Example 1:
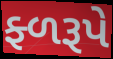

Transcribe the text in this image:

ફ્ળરૂપે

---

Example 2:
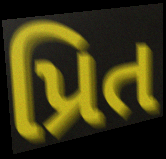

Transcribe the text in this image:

પ્રિત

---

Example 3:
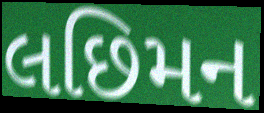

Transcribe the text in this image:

લછિમન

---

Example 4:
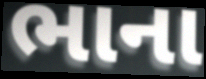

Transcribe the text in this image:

ભાના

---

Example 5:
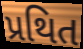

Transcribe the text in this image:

પ્રથિત